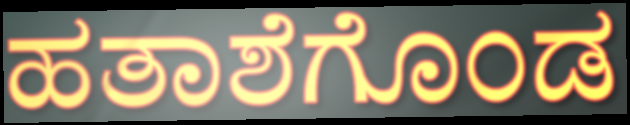
ಹತಾಶೆಗೊಂಡ